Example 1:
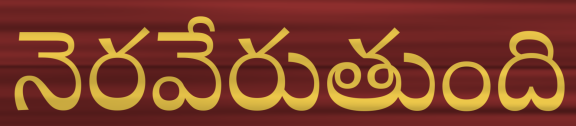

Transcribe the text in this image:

నెరవేరుతుంది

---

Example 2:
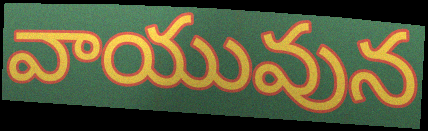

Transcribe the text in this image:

వాయువున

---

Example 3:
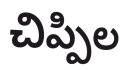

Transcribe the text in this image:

చిప్పిల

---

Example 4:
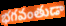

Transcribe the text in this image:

భగవంతుడా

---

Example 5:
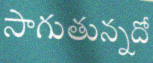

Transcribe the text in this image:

సాగుతున్నదో